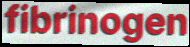
fibrinogen